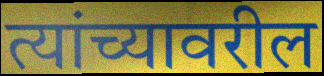
त्यांच्यावरील